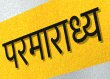
परमाराध्य